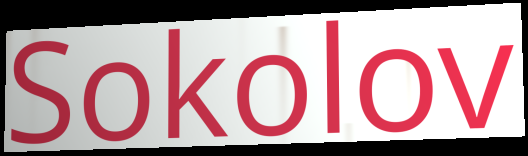
Sokolov